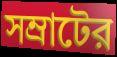
সম্রাটের